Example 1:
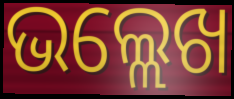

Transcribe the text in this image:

ଭଲ୍ଲେଖ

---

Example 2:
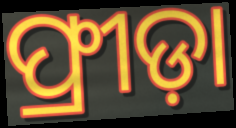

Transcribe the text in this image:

ଫ୍ରୀଡ଼ା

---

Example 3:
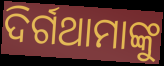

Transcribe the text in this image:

ଦିର୍ଗଥାମାଙ୍କୁ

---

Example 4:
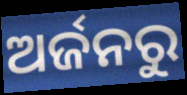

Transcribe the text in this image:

ଅର୍ଜନରୁ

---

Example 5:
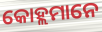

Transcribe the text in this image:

କୋହ୍ଲମାନେ